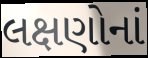
લક્ષણોનાં